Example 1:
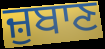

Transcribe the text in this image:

ਜ਼ੁਬਾਣ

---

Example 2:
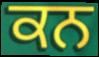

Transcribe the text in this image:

ਕਨ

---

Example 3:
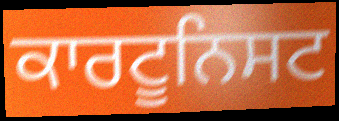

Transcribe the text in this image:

ਕਾਰਟੂਨਿਸਟ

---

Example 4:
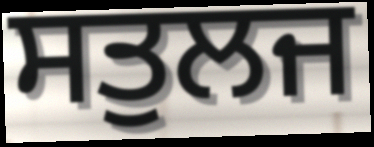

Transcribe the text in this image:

ਸਤੁਲਜ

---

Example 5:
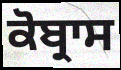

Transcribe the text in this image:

ਕੋਬ੍ਰਾਸ